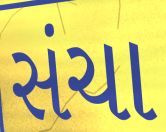
સંચા